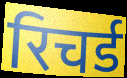
रिचर्ड